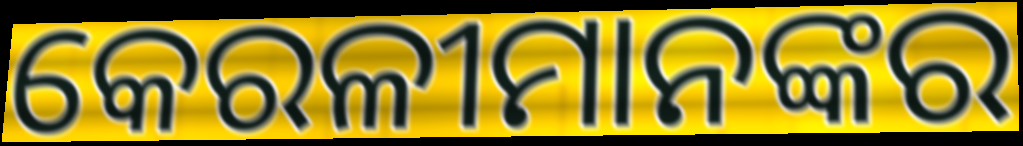
କେରଳୀମାନଙ୍କର